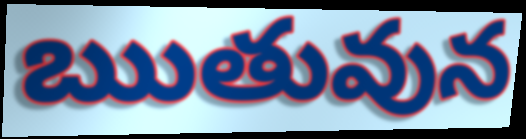
ఋతువున